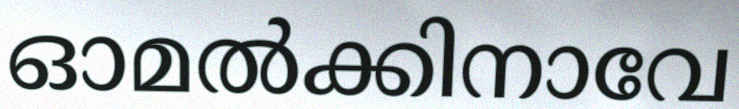
ഓമൽക്കിനാവേ